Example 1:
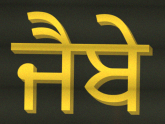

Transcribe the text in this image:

ਜੈਬੇ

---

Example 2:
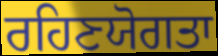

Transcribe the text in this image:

ਰਹਿਣਯੋਗਤਾ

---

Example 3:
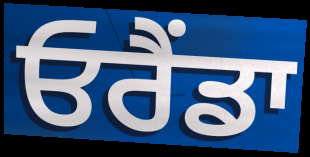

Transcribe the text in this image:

ਓਰੈਂਡਾ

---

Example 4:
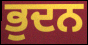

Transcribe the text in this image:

ਭੁਦਨ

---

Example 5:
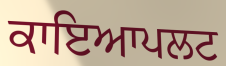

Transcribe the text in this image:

ਕਾਇਆਪਲਟ